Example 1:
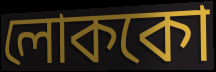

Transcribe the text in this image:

লোককো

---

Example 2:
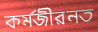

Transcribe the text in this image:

কৰ্মজীৱনত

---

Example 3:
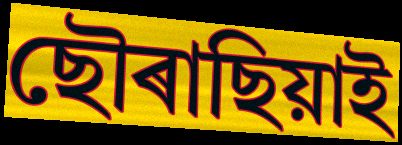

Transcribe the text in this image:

ছৌৰাছিয়াই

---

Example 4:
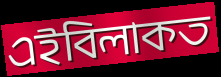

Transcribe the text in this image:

এইবিলাকত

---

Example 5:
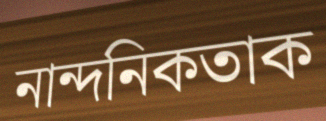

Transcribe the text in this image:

নান্দনিকতাক